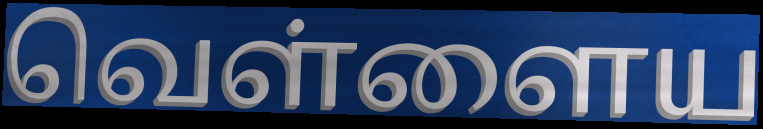
வெள்ளைய